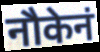
नौकेनं